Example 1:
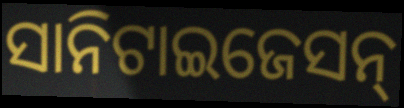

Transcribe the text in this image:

ସାନିଟାଇଜେସନ୍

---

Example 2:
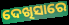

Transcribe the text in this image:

ଦେଖିସାରେ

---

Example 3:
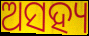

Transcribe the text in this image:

ଅସହ୍ୟ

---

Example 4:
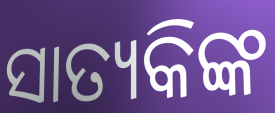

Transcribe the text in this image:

ସାତ୍ୟକିଙ୍କ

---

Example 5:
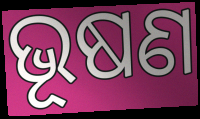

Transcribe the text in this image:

ଭୂଷଣ